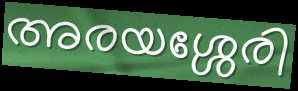
അരയശ്ശേരി